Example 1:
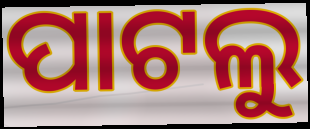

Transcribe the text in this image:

ପାଟଲୁ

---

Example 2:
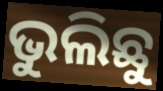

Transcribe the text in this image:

ଭୁଲିଛୁ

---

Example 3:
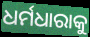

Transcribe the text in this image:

ଧର୍ମଧାରାକୁ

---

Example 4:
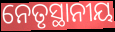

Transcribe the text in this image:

ନେତୃସ୍ଥାନୀୟ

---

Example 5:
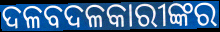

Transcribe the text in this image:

ଦଳବଦଳକାରୀଙ୍କର